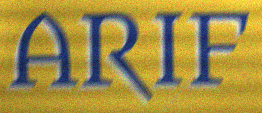
ARIF